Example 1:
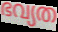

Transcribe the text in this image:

ഭവ്യത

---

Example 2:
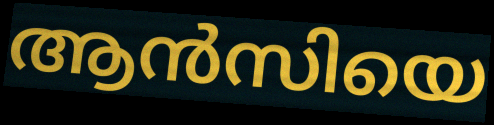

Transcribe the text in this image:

ആൻസിയെ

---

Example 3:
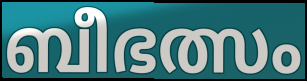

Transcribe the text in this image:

ബീഭത്സം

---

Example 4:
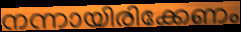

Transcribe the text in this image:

നന്നായിരിക്കേണം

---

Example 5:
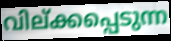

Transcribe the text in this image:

വില്ക്കപ്പെടുന്ന